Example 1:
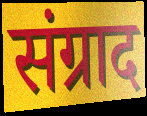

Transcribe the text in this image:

संग्राद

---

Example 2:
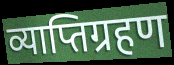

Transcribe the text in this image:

व्याप्तिग्रहण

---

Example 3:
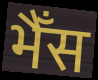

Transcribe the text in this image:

भैँस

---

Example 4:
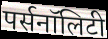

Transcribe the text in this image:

पर्सनॉलिटी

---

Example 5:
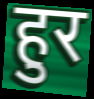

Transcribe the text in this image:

हुर